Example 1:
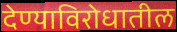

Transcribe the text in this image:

देण्याविरोधातील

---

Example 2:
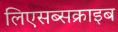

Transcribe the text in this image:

लिएसब्सक्राइब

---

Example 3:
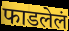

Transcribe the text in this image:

फाडलेलं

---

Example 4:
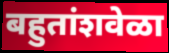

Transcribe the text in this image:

बहुतांशवेळा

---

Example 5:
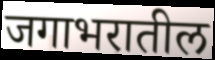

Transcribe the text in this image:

जगाभरातील